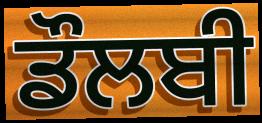
ਡੌਲਬੀ